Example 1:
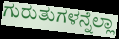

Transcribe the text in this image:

ಗುರುತುಗಳನ್ನೆಲ್ಲಾ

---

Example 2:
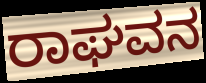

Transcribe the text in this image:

ರಾಘವನ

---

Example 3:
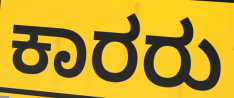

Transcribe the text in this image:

ಕಾರರು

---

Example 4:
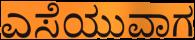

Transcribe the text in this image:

ಎಸೆಯುವಾಗ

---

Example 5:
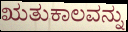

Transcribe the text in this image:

ಋತುಕಾಲವನ್ನು